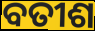
ବତୀଶ